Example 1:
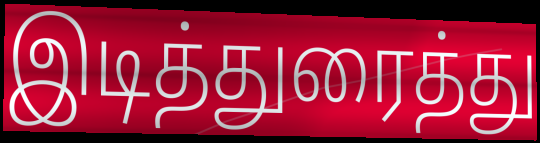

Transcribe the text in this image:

இடித்துரைத்து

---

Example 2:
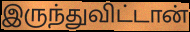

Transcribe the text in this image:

இருந்துவிட்டான்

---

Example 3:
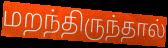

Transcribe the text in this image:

மறந்திருந்தால்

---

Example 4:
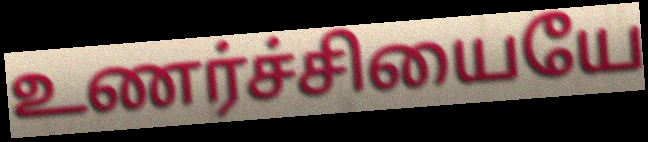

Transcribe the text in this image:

உணர்ச்சியையே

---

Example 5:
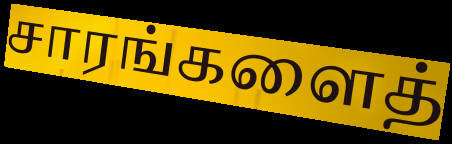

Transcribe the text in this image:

சாரங்களைத்